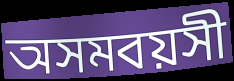
অসমবয়সী